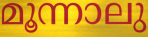
മൂന്നാലു